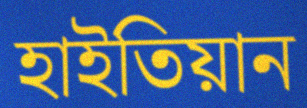
হাইতিয়ান